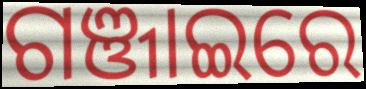
ଗଞ୍ଜାଇରେ